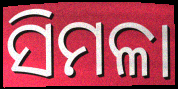
ସିମଳା